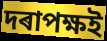
দৰাপক্ষই